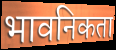
भावनिकता